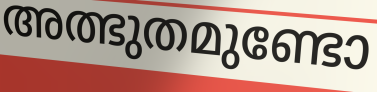
അത്ഭുതമുണ്ടോ